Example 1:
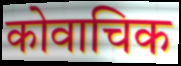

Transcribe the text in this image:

कोवाचिक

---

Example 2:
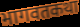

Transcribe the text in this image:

भागवतकथा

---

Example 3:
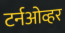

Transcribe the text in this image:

टर्नओव्हर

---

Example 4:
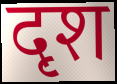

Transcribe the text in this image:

दृश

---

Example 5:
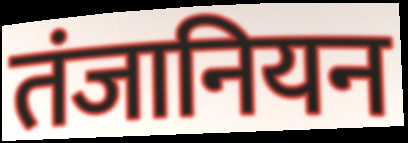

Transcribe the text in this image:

तंजानियन